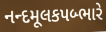
નન્દમૂલકપબ્ભારે